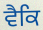
ਵੈਕਿ